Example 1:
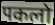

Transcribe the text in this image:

पकलो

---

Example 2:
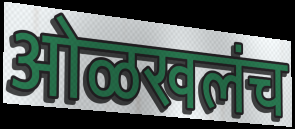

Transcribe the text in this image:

ओळखलंच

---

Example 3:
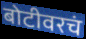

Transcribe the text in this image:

बोटीवरचं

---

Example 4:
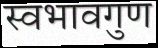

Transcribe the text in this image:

स्वभावगुण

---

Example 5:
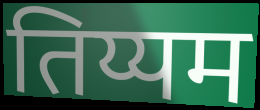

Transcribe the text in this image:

तिय्यम